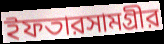
ইফতারসামগ্রীর